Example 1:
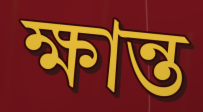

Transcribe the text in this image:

ক্ষান্ত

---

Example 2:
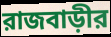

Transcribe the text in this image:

রাজবাড়ীর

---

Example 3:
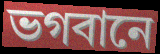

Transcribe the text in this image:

ভগবানে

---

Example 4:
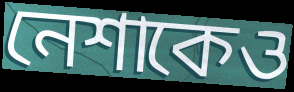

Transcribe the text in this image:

নেশাকেও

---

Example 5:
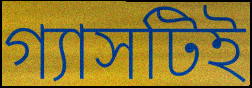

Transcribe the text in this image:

গ্যাসটিই